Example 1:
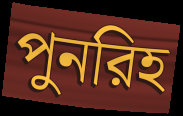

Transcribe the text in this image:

পুনরিহ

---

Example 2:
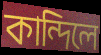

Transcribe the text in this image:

কান্দিলে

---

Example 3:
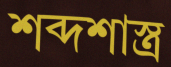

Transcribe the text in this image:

শব্দশাস্ত্র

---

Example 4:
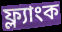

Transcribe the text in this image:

ফ্ল্যাংক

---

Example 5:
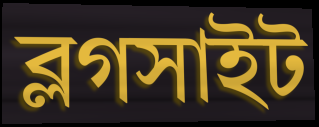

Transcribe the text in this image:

ব্লগসাইট